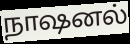
நாஷனல்